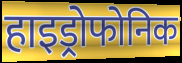
हाइड्रोफोनिक